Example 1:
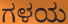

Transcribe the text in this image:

ಗಳಯ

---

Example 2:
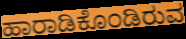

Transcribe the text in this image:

ಹಾರಾಡಿಕೊಂಡಿರುವ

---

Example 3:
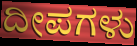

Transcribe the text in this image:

ದೀಪಗಳು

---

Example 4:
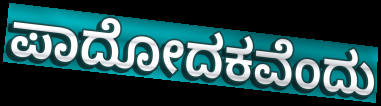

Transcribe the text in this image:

ಪಾದೋದಕವೆಂದು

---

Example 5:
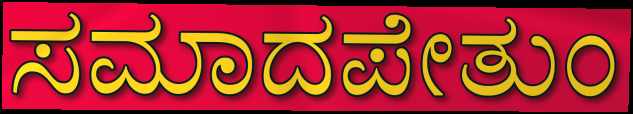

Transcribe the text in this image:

ಸಮಾದಪೇತುಂ